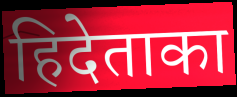
हिदेताका